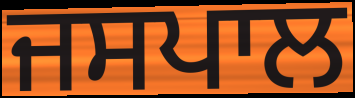
ਜਸਪਾਲ